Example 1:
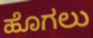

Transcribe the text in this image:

ಹೊಗಲು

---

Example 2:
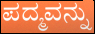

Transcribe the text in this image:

ಪದ್ಮವನ್ನು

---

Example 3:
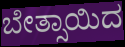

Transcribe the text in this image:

ಬೇತ್ಸಾಯಿದ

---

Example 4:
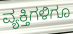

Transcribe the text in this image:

ವ್ಯಕ್ತಿಗಳಿಗೂ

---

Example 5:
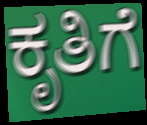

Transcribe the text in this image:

ಕೃತಿಗೆ